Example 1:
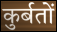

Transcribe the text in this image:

कुर्बतों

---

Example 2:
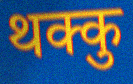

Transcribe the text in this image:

थक्कु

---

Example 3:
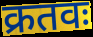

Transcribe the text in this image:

क्रतवः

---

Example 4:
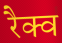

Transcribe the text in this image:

रैक्व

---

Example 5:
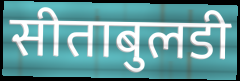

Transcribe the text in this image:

सीताबुलडी